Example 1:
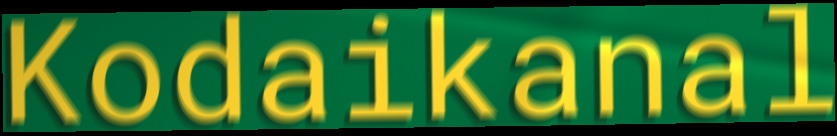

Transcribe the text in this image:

Kodaikanal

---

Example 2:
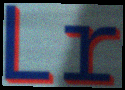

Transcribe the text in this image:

Lr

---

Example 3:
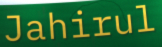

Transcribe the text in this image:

Jahirul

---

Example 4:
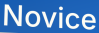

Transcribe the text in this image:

Novice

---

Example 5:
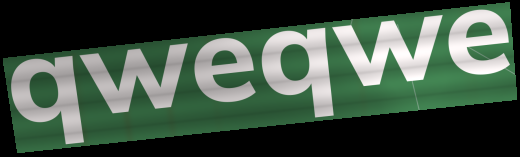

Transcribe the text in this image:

qweqwe